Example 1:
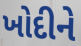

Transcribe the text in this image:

ખોદીને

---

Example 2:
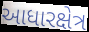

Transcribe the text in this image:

આધારક્ષેત્ર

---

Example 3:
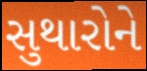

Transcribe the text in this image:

સુથારોને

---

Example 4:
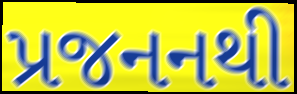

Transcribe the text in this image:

પ્રજનનથી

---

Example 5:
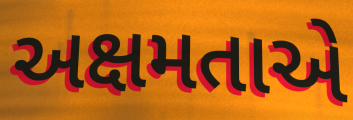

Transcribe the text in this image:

અક્ષમતાએ